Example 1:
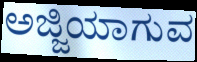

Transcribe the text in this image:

ಅಜ್ಜಿಯಾಗುವ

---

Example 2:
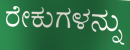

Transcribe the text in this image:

ರೇಕುಗಳನ್ನು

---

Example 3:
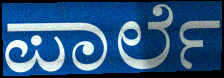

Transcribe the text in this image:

ಪಾರ್ಲೆ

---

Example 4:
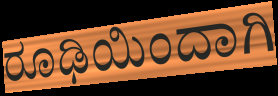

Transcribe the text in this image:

ರೂಢಿಯಿಂದಾಗಿ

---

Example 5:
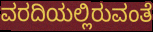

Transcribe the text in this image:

ವರದಿಯಲ್ಲಿರುವಂತೆ